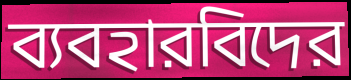
ব্যবহারবিদের